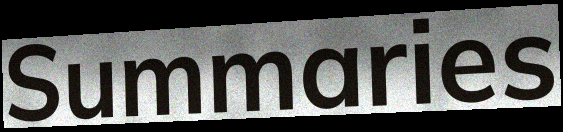
Summaries